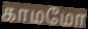
காமமோ